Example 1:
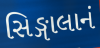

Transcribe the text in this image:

સિઙ્ગાલાનં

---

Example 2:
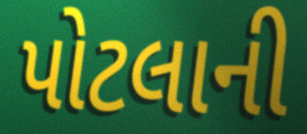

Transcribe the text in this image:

પોટલાની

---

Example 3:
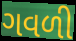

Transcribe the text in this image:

ગવળી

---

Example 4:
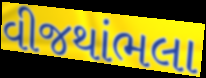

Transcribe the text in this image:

વીજથાંભલા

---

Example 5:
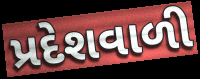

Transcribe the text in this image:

પ્રદેશવાળી